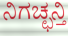
ನಿಗಚ್ಛನ್ತಿ